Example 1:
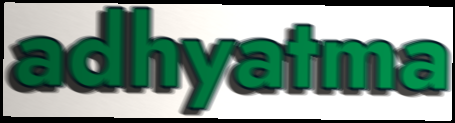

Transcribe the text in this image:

adhyatma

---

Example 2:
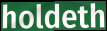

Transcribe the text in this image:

holdeth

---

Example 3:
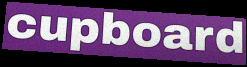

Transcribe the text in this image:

cupboard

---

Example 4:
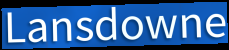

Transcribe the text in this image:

Lansdowne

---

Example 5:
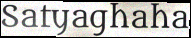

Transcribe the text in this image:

Satyaghaha